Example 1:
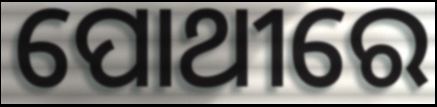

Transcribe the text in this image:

ପୋଥୀରେ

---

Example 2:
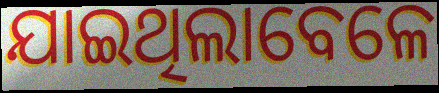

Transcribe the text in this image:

ଯାଇଥିଲାବେଳେ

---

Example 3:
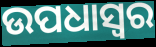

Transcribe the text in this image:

ଉପଧାସ୍ୱର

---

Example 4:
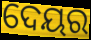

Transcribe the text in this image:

ଦେୟର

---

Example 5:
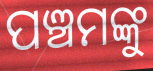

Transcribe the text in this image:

ପଞ୍ଚମଙ୍କୁ